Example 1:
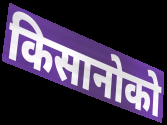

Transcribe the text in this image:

किसानोको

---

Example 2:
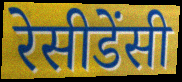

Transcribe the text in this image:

रेसीडेंसी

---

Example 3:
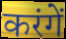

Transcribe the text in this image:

करंगें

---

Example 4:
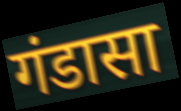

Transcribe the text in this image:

गंडासा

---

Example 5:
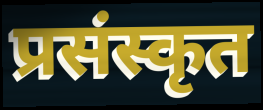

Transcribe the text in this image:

प्रसंस्कृत